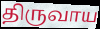
திருவாய